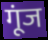
गूंज